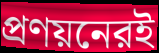
প্রণয়নেরই